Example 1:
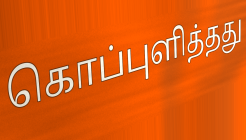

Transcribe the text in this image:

கொப்புளித்தது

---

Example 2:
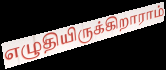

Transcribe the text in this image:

எழுதியிருக்கிறாராம்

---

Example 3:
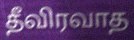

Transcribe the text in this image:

தீவிரவாத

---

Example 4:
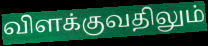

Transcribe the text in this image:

விளக்குவதிலும்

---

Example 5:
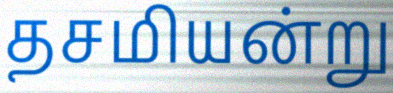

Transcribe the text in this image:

தசமியன்று